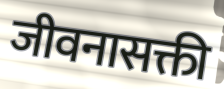
जीवनासक्ती